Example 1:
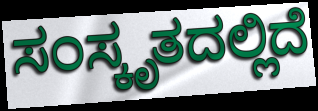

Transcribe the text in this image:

ಸಂಸ್ಕೃತದಲ್ಲಿದೆ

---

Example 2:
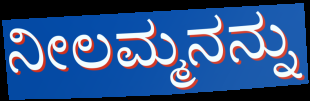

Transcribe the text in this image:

ನೀಲಮ್ಮನನ್ನು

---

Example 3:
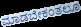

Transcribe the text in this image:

ಮಾಡಬೇಕಂತಲೂ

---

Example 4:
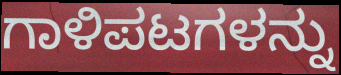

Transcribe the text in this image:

ಗಾಳಿಪಟಗಳನ್ನು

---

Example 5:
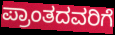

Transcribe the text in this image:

ಪ್ರಾಂತದವರಿಗೆ